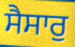
ਸੈਸਾਰੁ